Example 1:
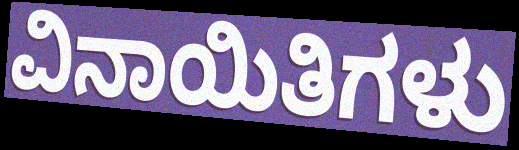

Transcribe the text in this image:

ವಿನಾಯಿತಿಗಳು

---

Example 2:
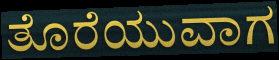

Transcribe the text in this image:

ತೊರೆಯುವಾಗ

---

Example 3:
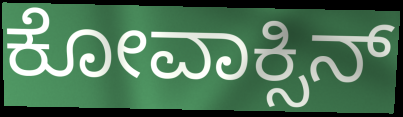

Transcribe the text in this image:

ಕೋವಾಕ್ಸಿನ್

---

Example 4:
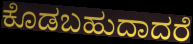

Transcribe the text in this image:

ಕೊಡಬಹುದಾದರೆ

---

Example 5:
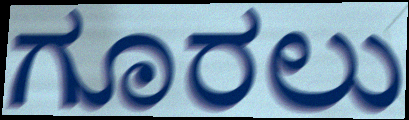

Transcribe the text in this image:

ಗೂರಲು